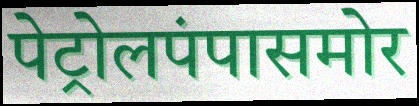
पेट्रोलपंपासमोर